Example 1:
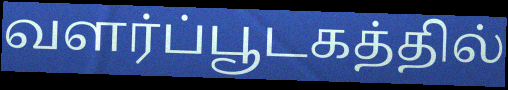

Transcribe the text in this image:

வளர்ப்பூடகத்தில்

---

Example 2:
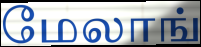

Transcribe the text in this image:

மேலாங்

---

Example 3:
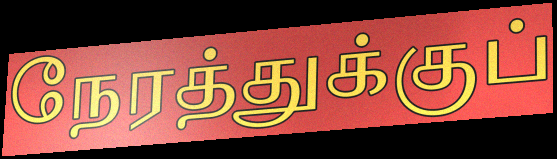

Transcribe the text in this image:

நேரத்துக்குப்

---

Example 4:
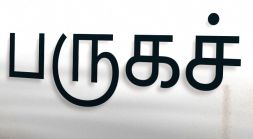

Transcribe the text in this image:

பருகச்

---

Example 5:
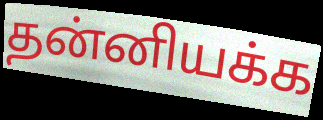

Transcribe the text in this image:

தன்னியக்க